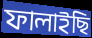
ফালাইছি